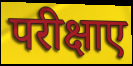
परीक्षाए